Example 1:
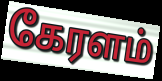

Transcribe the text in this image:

கேரளம்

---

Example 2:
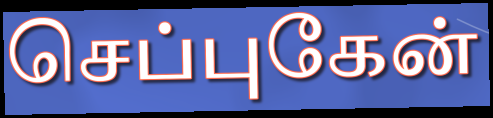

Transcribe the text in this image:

செப்புகேன்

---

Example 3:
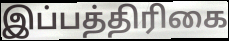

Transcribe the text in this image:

இப்பத்திரிகை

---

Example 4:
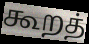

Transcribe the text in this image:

கூறத்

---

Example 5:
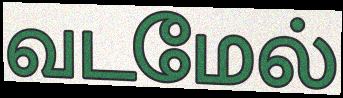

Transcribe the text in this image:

வடமேல்